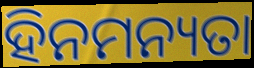
ହିନମନ୍ୟତା